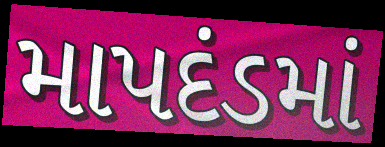
માપદંડમાં